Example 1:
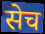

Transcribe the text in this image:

सेच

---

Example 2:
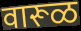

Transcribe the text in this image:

वारूळ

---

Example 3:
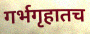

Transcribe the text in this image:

गर्भगृहातच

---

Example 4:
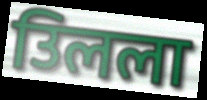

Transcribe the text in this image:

उिलला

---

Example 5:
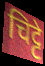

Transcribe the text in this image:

चिट्टे